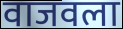
वाजवला